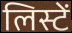
लिस्टें